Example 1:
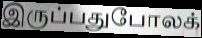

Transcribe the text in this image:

இருப்பதுபோலக்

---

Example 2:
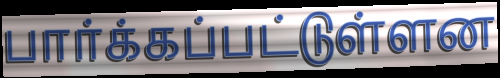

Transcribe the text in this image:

பார்க்கப்பட்டுள்ளன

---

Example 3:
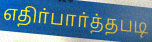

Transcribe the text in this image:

எதிர்பார்த்தபடி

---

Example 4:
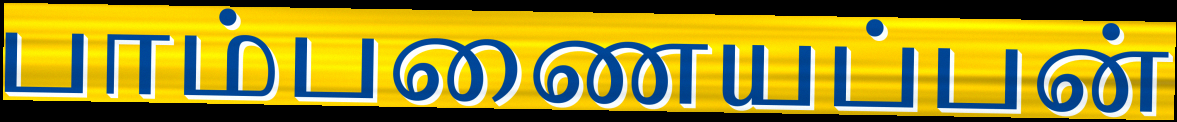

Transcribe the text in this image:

பாம்பணையப்பன்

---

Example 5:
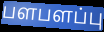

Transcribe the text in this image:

பளபளப்பு